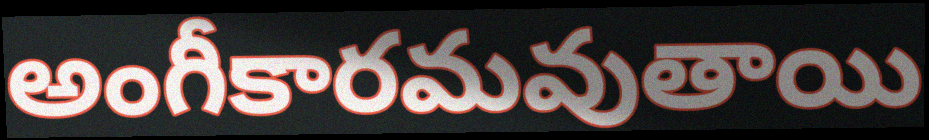
అంగీకారమవుతాయి